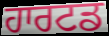
ਹਾਰਟਡ